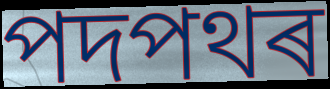
পদপথৰ